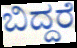
ಬಿದ್ದರೆ